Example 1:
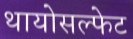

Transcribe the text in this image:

थायोसल्फेट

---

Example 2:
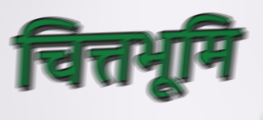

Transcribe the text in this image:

चित्तभूमि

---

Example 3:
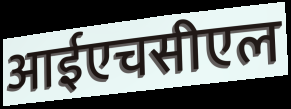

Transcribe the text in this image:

आईएचसीएल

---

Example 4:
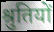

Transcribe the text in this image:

श्रुतियों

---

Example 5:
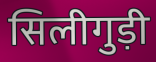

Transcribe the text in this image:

सिलीगुड़ी